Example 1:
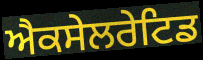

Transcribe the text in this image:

ਐਕਸੇਲਰੇਟਿਡ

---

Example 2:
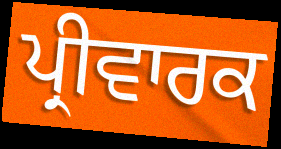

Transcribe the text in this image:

ਪ੍ਰੀਵਾਰਕ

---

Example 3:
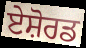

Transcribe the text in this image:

ਏਸ਼ੋਰਡ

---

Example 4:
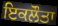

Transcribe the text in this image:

ਇਕਲੌਤਾ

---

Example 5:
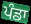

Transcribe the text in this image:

ਪੰਡਾ